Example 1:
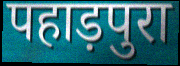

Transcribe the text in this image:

पहाड़पुरा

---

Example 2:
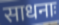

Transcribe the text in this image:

साधनाः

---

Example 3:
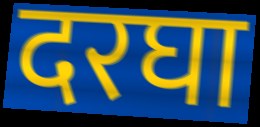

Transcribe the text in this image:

दरघा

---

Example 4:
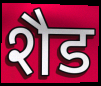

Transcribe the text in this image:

शैड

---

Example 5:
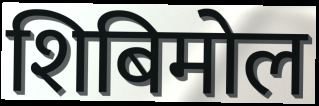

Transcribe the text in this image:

शिबिमोल